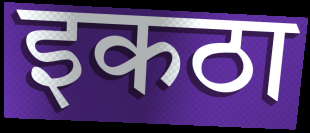
इकठा